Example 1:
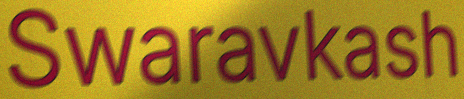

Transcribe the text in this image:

Swaravkash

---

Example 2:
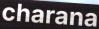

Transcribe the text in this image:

charana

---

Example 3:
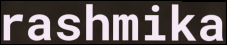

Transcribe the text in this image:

rashmika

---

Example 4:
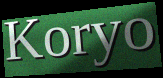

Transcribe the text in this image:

Koryo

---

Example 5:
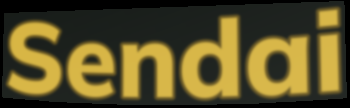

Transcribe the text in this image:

Sendai